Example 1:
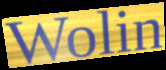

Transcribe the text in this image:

Wolin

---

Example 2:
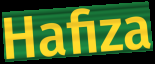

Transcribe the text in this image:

Hafiza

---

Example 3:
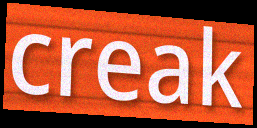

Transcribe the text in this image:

creak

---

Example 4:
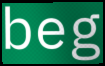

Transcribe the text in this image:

beg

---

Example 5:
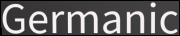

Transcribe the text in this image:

Germanic